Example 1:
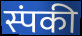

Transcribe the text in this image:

स्पंकी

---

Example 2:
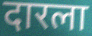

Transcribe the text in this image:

दारला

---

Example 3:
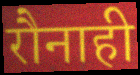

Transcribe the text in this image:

रौनाही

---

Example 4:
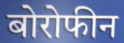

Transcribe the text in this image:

बोरोफीन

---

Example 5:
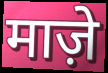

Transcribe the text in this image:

माज़े